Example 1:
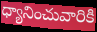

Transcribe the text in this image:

ధ్యానించువారికి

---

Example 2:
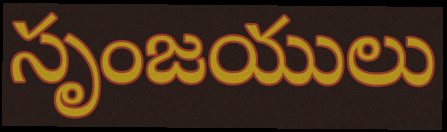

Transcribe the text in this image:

సృంజయులు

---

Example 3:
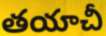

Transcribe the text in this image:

తయాచీ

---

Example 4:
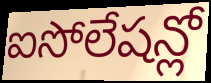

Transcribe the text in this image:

ఐసోలేషన్లో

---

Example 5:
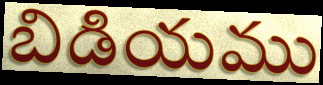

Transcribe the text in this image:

బిడియము